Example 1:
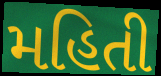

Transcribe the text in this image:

મહિતી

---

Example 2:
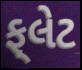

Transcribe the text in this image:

ફ્‌લેટ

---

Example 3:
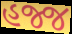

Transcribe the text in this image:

હજ્જ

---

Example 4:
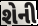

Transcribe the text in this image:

શેની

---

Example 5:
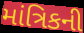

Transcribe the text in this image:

માંત્રિકની